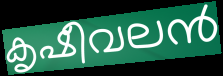
കൃഷീവലൻ